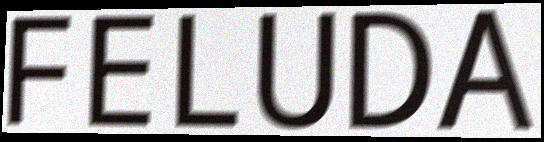
FELUDA